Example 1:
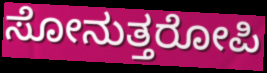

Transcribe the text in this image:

ಸೋನುತ್ತರೋಪಿ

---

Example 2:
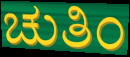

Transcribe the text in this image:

ಚುತಿಂ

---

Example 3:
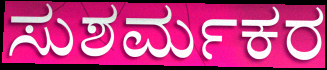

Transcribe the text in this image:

ಸುಶರ್ಮಕರ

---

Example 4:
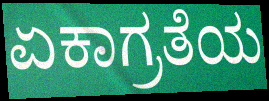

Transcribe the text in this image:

ಏಕಾಗ್ರತೆಯ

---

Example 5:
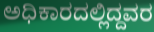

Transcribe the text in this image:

ಅಧಿಕಾರದಲ್ಲಿದ್ದವರ